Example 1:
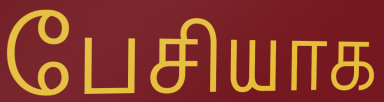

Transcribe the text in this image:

பேசியாக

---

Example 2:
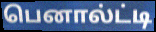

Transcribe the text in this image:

பெனால்ட்டி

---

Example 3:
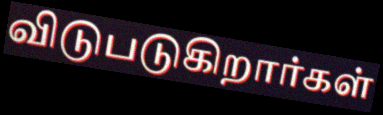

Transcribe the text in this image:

விடுபடுகிறார்கள்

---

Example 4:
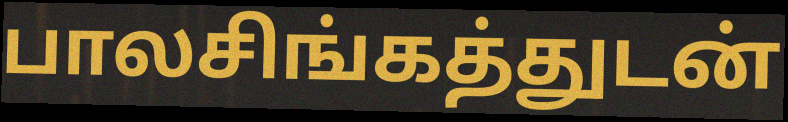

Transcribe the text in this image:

பாலசிங்கத்துடன்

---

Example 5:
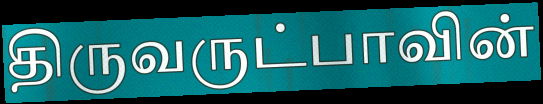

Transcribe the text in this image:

திருவருட்பாவின்